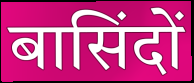
बासिंदों